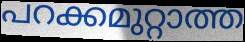
പറക്കമുറ്റാത്ത